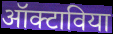
ऑक्टाविया